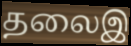
தலைஇ